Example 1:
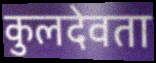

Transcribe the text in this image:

कुलदेवता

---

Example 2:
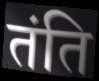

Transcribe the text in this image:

तंति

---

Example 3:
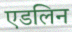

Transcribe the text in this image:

एडलिन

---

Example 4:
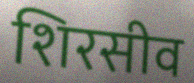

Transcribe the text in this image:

शिरसीव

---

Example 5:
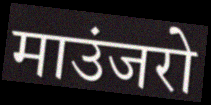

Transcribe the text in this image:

माउंजरो